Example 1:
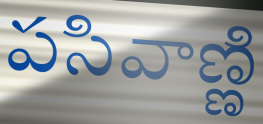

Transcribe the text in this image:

పసివాణ్ణి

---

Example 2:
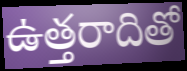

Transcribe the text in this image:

ఉత్తరాదితో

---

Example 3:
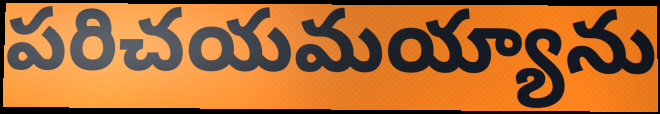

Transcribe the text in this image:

పరిచయమయ్యాను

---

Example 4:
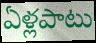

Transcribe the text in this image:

ఏళ్లపాటు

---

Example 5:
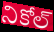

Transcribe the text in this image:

నికోల్